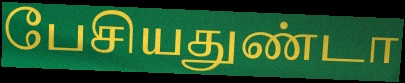
பேசியதுண்டா